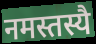
नमस्तस्यै